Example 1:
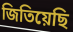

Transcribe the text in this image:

জিতিয়েছি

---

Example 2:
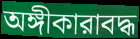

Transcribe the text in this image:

অঙ্গীকারাবদ্ধ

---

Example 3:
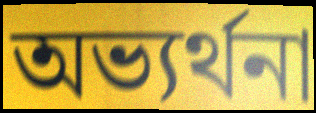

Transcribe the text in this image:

অভ্যর্থনা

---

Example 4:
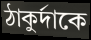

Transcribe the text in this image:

ঠাকুর্দাকে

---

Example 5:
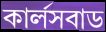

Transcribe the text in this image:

কার্লসবাড